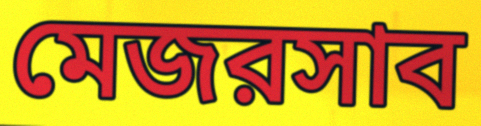
মেজরসাব